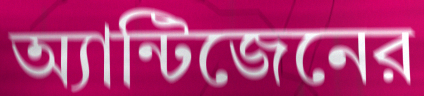
অ্যান্টিজেনের